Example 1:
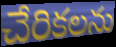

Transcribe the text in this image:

చేరికలను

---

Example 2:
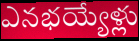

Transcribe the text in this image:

ఎనభయ్యేళ్లు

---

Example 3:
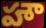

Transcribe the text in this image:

హౌ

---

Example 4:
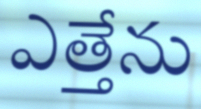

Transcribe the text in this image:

ఎత్తేను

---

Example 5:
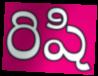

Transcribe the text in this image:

రిషి